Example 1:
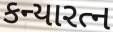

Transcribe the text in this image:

કન્યારત્ન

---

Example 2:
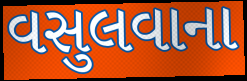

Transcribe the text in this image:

વસુલવાના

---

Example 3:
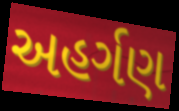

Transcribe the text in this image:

અહર્ગણ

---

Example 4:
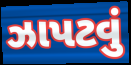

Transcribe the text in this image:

ઝાપટવું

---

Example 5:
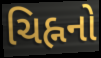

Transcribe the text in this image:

ચિહ્નનો